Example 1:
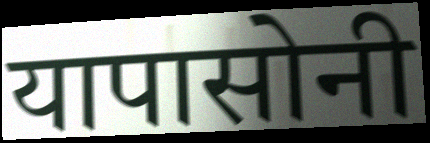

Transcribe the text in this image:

यापासोनी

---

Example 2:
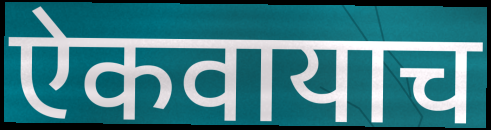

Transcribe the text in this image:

ऐकवायाच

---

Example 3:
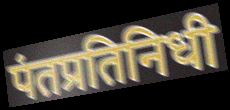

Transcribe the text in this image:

पंतप्रतिनिधी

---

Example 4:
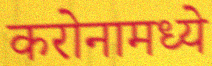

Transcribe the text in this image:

करोनामध्ये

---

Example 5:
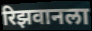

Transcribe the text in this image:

रिझवानला